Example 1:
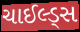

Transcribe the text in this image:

ચાઈલ્ડ્સ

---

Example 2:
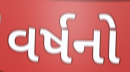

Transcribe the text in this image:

વર્ષનો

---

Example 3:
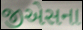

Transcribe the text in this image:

જીએસના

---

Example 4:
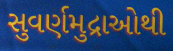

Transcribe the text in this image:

સુવર્ણમુદ્રાઓથી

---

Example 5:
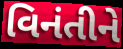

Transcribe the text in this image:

વિનંતીને